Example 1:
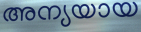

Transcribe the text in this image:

അന്യയായ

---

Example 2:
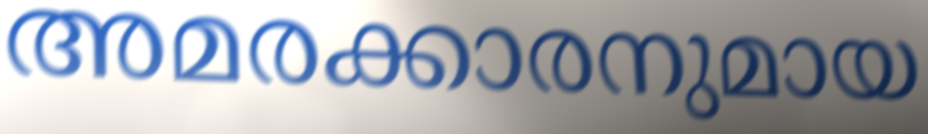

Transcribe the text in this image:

അമരക്കാരനുമായ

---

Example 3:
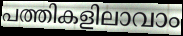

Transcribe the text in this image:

പത്തികളിലാവാം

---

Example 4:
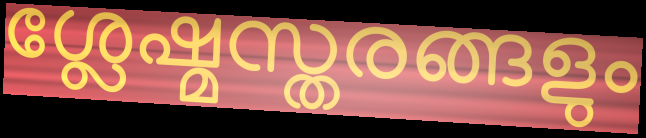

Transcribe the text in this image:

ശ്ലേഷ്മസ്തരങ്ങളും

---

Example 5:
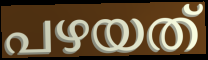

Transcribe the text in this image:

പഴയത്